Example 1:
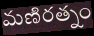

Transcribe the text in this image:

మణిరత్నం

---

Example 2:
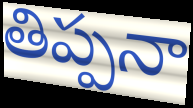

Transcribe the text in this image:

తిప్పనా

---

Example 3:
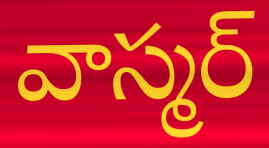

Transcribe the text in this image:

వాస్మర్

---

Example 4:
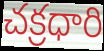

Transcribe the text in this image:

చక్రధారి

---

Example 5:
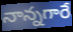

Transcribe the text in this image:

నాన్నగారే